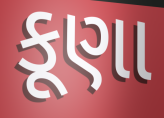
કૂણા